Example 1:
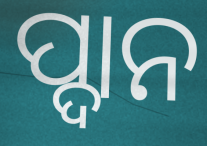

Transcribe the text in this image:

ପ୍ଦାନ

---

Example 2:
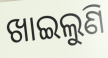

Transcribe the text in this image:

ଖାଇଲୁଣି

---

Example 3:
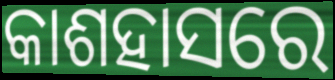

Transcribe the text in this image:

କାଶହାସରେ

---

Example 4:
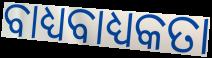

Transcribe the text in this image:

ବାଧ୍ୟବାଧ୍ୟକତା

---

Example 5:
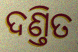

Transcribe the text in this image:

ଦଣ୍ତିତ